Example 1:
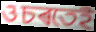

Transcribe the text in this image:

ওচৰতেই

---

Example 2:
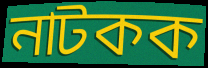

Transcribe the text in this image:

নাটকক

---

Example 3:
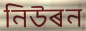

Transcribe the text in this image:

নিউৰন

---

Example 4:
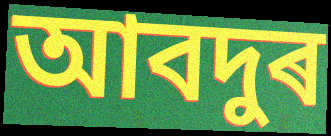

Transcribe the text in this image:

আবদুৰ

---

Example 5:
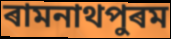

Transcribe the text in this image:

ৰামনাথপুৰম